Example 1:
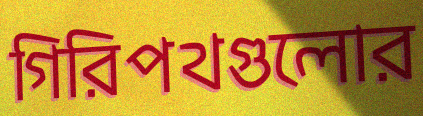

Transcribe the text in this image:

গিরিপথগুলোর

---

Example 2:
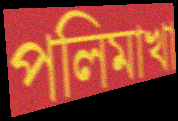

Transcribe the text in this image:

পলিমাখা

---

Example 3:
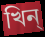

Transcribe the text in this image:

খিন্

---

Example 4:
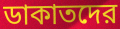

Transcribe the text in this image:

ডাকাতদের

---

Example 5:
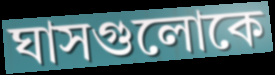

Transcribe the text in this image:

ঘাসগুলোকে